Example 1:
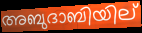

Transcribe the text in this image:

അബുദാബിയില്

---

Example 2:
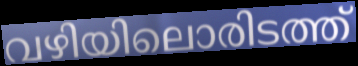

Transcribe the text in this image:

വഴിയിലൊരിടത്ത്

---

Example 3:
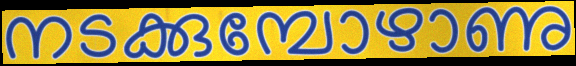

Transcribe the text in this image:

നടക്കുമ്പോഴാണു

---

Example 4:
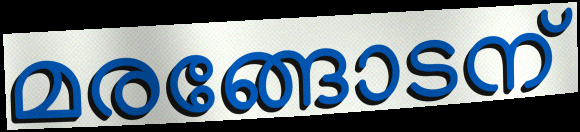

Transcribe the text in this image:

മരങ്ങോടന്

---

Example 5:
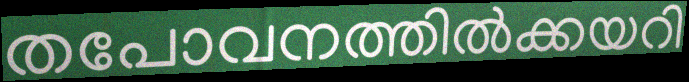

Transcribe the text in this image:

തപോവനത്തിൽക്കയറി